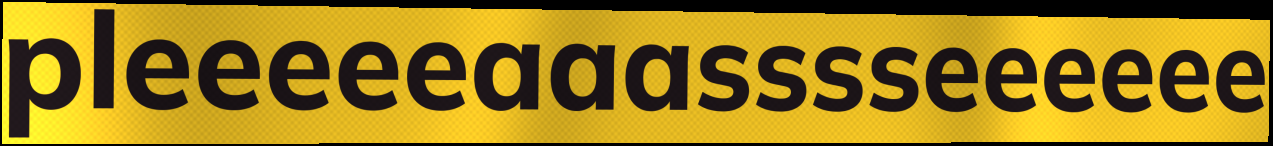
pleeeeeaaasssseeeeee